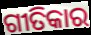
ଗୀତିକାର